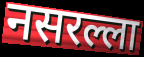
नसरल्ला